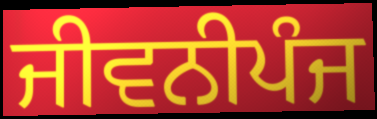
ਜੀਵਨੀਪੰਜ